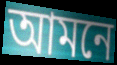
আমনে